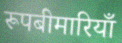
रूपबीमारियाँ